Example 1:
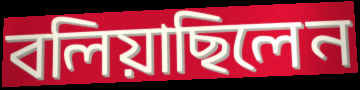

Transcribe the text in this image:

বলিয়াছিলেন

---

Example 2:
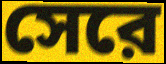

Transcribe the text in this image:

সেরে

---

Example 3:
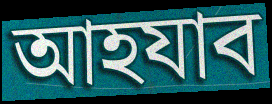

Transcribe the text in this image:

আহযাব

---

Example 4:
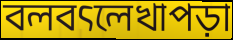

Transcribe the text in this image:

বলবৎলেখাপড়া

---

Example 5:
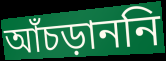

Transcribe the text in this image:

আঁচড়াননি